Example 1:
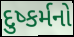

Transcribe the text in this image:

દુષ્કર્મનો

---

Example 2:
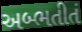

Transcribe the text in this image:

અબ્ભતીતં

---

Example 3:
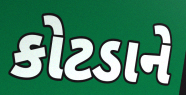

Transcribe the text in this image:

કોટડાને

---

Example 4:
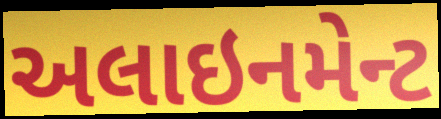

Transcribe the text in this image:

અલાઇનમેન્ટ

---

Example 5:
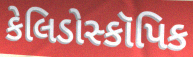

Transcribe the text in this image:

કેલિડોસ્કૉપિક